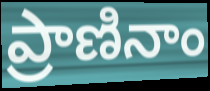
ప్రాణినాం